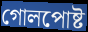
গোলপোষ্ট